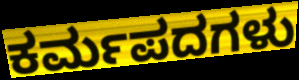
ಕರ್ಮಪದಗಳು